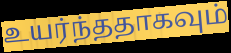
உயர்ந்ததாகவும்